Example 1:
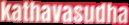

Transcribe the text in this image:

kathavasudha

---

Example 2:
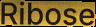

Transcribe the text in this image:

Ribose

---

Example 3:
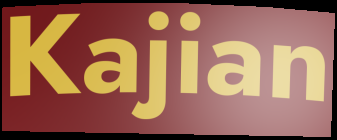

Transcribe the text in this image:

Kajian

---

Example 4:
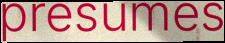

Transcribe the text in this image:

presumes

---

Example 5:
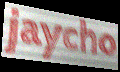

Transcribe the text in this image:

jaycho